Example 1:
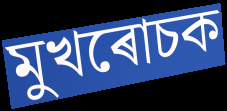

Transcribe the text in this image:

মুখৰোচক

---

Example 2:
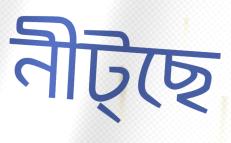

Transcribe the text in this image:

নীট্‌ছে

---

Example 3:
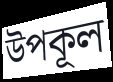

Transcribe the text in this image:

উপকূল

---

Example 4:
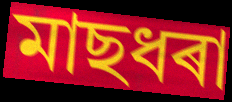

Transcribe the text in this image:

মাছধৰা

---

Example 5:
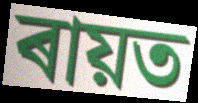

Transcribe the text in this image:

ৰায়ত